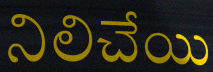
నిలిచేయి